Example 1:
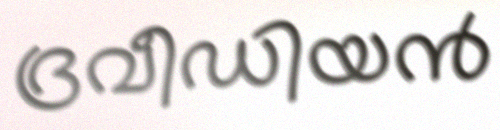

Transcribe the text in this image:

ദ്രവീഡിയൻ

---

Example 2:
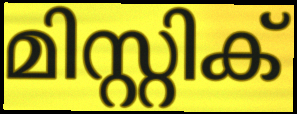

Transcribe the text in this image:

മിസ്റ്റിക്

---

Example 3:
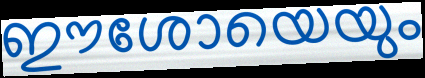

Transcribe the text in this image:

ഈശോയെയും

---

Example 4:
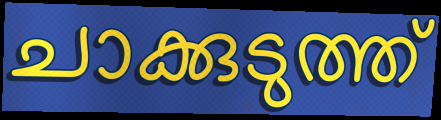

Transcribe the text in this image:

ചാക്കുടുത്ത്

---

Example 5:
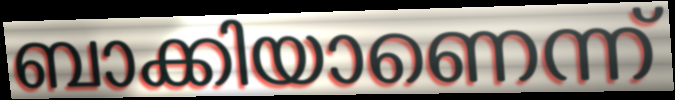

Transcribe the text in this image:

ബാക്കിയാണെന്ന്